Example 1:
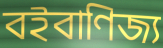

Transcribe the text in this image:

বইবাণিজ্য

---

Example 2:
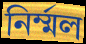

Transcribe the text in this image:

নির্ম্মল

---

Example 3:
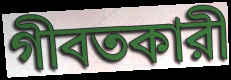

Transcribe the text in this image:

গীবতকারী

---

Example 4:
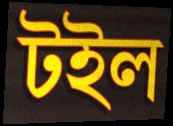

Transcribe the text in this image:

টইল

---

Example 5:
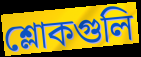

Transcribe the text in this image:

শ্লোকগুলি